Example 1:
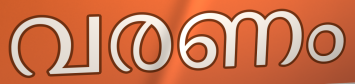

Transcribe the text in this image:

വരണം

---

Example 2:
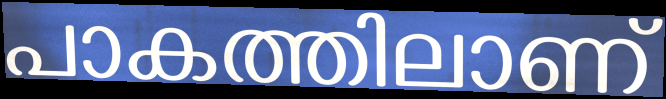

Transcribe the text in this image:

പാകത്തിലാണ്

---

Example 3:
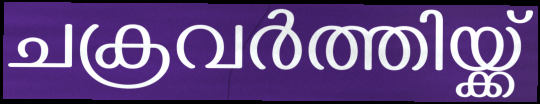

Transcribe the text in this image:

ചക്രവർത്തിയ്ക്ക്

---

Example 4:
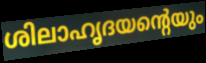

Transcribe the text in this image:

ശിലാഹൃദയന്റെയും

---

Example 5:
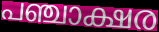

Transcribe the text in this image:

പഞ്ചാക്ഷര